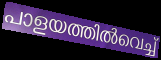
പാളയത്തിൽവെച്ച്